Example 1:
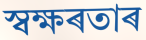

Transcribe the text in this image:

স্বক্ষৰতাৰ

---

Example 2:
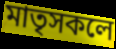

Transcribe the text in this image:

মাতৃসকলে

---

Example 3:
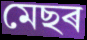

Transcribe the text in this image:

মেছৰ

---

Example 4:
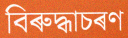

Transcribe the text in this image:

বিৰুদ্ধাচৰণ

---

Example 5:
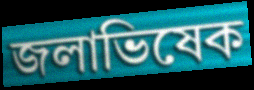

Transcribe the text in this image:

জলাভিষেক